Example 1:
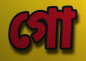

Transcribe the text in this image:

গো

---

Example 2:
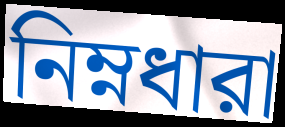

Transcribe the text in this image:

নিম্নধারা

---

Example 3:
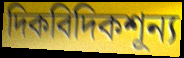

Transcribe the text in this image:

দিকবিদিকশূন্য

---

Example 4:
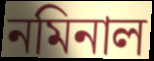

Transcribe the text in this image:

নমিনাল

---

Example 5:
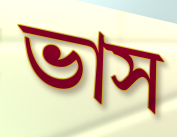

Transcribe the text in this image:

ভাস